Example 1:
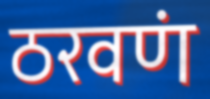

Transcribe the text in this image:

ठरवणं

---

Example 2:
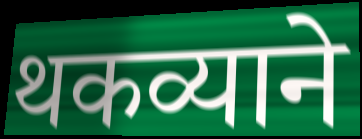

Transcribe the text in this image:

थकव्याने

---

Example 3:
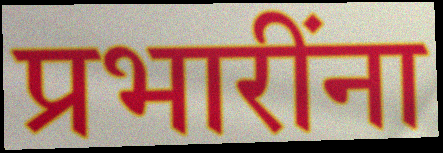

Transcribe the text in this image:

प्रभारींना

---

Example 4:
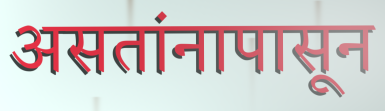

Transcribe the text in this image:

असतांनापासून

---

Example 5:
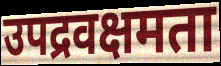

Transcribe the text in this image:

उपद्रवक्षमता